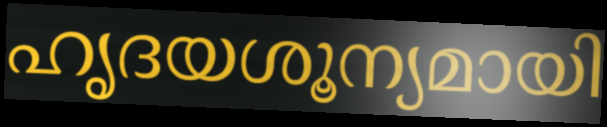
ഹൃദയശൂന്യമായി